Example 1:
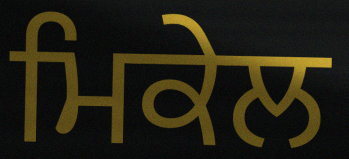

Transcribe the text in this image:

ਮਿਕੇਲ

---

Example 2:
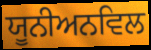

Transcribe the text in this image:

ਯੂਨੀਅਨਵਿਲ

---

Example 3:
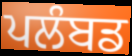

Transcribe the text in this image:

ਪਲੰਬਡ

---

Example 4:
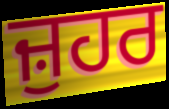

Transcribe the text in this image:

ਜ਼ੁਹਰ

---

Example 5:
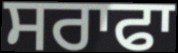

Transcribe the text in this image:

ਸਰਾਫਾ